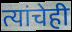
त्यांचेही